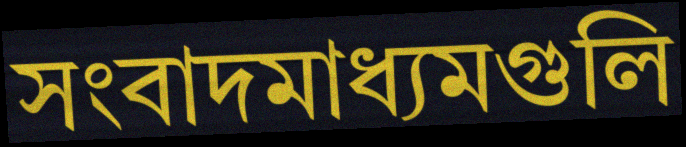
সংবাদমাধ্যমগুলি